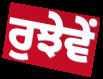
ਰੁਝੇਵੇਂ